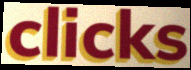
clicks